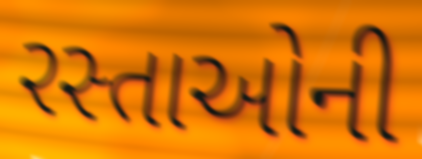
રસ્તાઓની